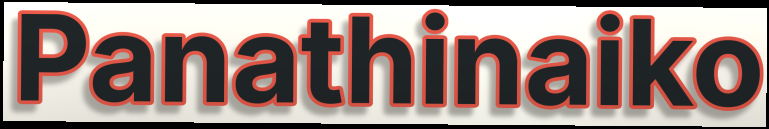
Panathinaiko